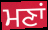
ਮਣਾਂ